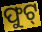
ଫୁଟ୍